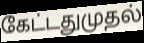
கேட்டதுமுதல்